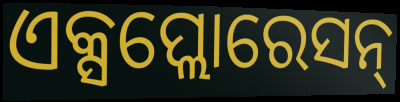
ଏକ୍ସପ୍ଲୋରେସନ୍